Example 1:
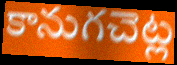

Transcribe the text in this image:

కానుగచెట్ల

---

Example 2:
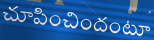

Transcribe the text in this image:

చూపించిందంటూ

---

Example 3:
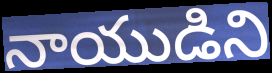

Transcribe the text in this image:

నాయుడిని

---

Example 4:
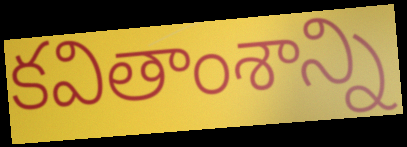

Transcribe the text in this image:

కవితాంశాన్ని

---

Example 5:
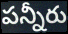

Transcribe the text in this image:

పన్నీరు